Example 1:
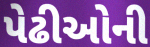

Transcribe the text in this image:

પેઢીઓની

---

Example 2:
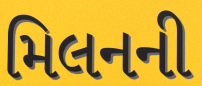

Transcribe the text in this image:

મિલનની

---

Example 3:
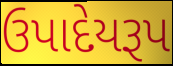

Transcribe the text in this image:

ઉપાદેયરૂપ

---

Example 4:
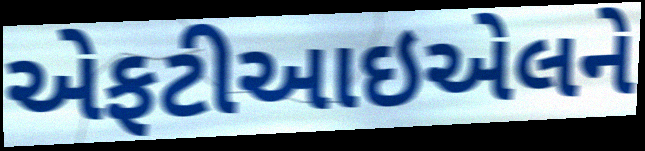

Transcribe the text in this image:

એફટીઆઇએલને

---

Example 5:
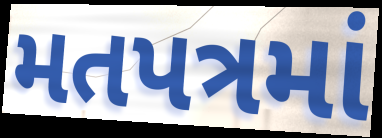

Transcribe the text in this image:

મતપત્રમાં